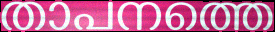
താപനത്തെ